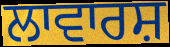
ਲਾਵਾਰਸ਼